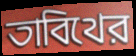
তাবিথের